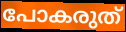
പോകരുത്